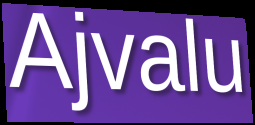
Ajvalu